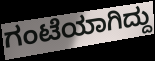
ಗಂಟೆಯಾಗಿದ್ದು